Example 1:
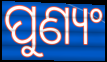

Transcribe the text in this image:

ପୁଣ୍ୟଂ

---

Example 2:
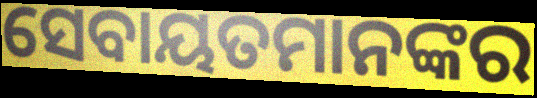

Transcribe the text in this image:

ସେବାୟତମାନଙ୍କର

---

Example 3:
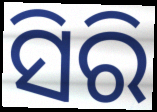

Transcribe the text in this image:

ସିରି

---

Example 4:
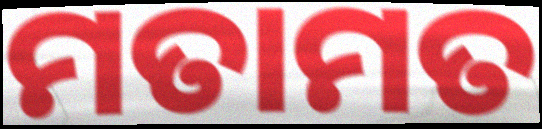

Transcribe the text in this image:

ମତାମତ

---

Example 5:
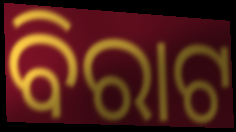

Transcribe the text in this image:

ବିରାଟ